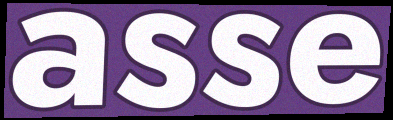
asse